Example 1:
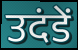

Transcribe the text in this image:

उदंडें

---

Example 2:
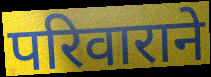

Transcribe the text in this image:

परिवाराने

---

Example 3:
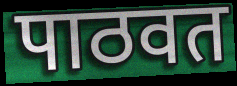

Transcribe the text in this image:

पाठवत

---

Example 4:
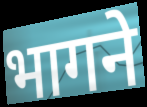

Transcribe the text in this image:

भागने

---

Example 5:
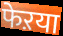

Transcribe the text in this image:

फेऱया